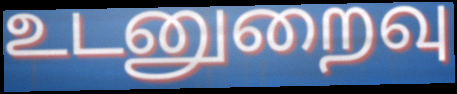
உடனுறைவு